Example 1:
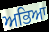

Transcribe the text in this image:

ਅਭਿਆ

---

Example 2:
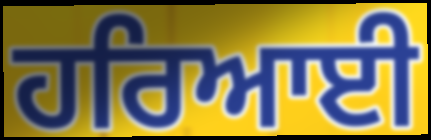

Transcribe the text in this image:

ਹਰਿਆਈ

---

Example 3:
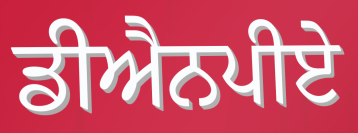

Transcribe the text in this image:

ਡੀਐਨਪੀਏ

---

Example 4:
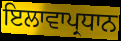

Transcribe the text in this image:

ਇਲਾਵਾਪ੍ਰਧਾਨ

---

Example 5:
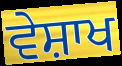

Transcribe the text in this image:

ਵੇਸ਼ਾਖ